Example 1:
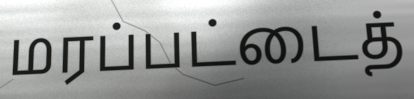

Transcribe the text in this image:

மரப்பட்டைத்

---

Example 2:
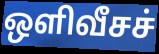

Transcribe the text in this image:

ஒளிவீசச்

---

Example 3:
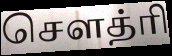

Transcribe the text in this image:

சௌத்ரி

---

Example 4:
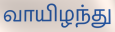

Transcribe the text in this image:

வாயிழந்து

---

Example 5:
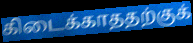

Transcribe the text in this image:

கிடைக்காததற்குக்